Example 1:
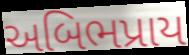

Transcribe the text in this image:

અબિભપ્રાય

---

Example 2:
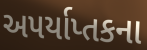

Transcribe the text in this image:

અપર્યાપ્તકના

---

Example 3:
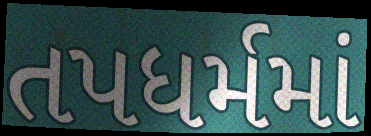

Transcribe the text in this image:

તપધર્મમાં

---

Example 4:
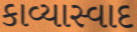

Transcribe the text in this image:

કાવ્યાસ્વાદ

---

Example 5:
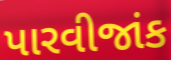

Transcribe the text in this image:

પારવીજાંક